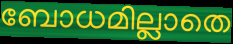
ബോധമില്ലാതെ